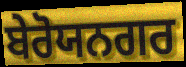
ਬੇਰੋਯਨਗਰ